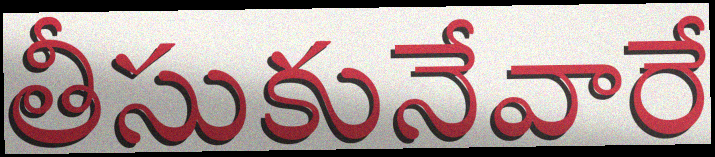
తీసుకునేవారే